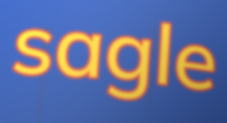
sagle